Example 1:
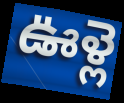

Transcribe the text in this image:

ఊళ్లె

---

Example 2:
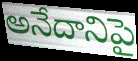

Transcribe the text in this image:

అనేదానిపై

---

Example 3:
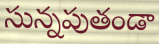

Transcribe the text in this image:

సున్నపుతండా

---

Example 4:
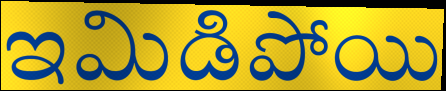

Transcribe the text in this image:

ఇమిడిపోయి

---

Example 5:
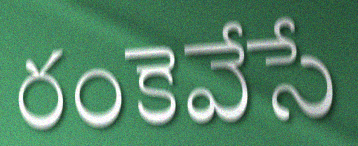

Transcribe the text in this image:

రంకెవేసే